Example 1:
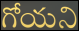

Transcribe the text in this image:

గోయని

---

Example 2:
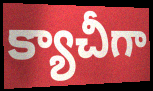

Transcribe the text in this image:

క్యాచీగా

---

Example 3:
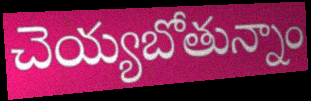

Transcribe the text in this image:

చెయ్యబోతున్నాం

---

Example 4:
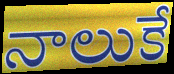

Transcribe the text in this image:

నాలుకే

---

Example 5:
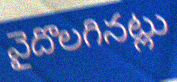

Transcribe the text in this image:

వైదొలగినట్లు